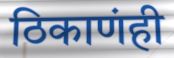
ठिकाणंही